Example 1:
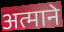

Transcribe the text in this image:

अत्माने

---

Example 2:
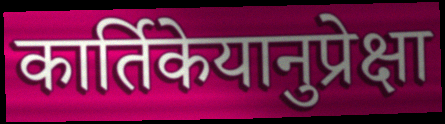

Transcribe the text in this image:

कार्तिकेयानुप्रेक्षा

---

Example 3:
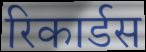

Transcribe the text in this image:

रिकार्डस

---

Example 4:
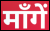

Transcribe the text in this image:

माँगें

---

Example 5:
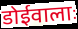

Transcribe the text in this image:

डोईवालाः